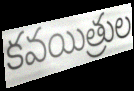
కవయిత్రుల